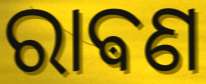
ରାଵଣ